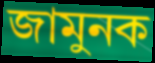
জামুনক